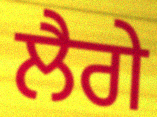
ਲੈਗੇ